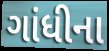
ગાંધીના